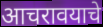
आचरावयाचे